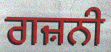
ਗਜ਼ਨੀ